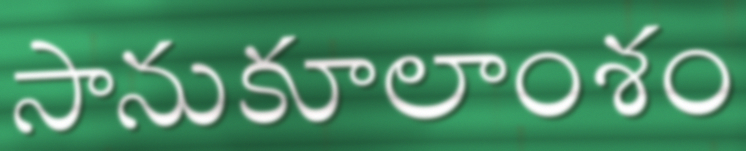
సానుకూలాంశం